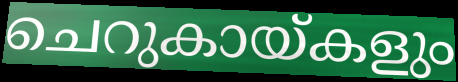
ചെറുകായ്കളും